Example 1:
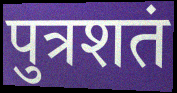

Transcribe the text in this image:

पुत्रशतं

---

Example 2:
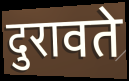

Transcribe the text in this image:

दुरावते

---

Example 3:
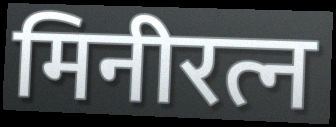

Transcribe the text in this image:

मिनीरत्न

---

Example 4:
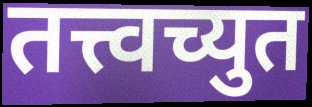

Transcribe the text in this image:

तत्त्वच्युत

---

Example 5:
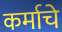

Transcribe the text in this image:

कर्माचे